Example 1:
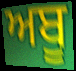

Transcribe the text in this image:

ਅਬੂ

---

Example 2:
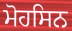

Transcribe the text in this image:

ਮੋਹਸਿਨ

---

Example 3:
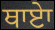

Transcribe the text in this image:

ਥਾਏਾ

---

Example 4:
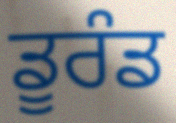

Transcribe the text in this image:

ਡੂਰੰਡ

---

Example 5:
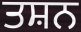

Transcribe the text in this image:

ਤਸ਼ਨ